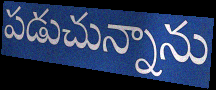
పడుచున్నాను